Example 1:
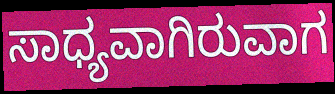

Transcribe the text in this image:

ಸಾಧ್ಯವಾಗಿರುವಾಗ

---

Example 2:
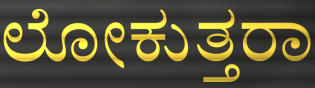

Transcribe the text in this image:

ಲೋಕುತ್ತರಾ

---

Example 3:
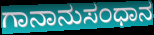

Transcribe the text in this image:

ಗಾನಾನುಸಂಧಾನ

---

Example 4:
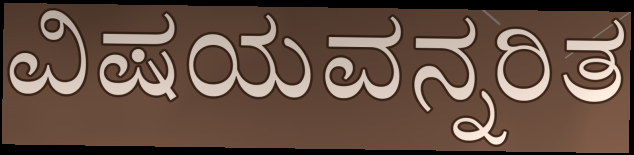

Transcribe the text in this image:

ವಿಷಯವನ್ನರಿತ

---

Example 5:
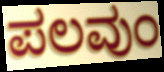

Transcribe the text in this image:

ಪಲವುಂ